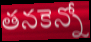
తనకెన్నో